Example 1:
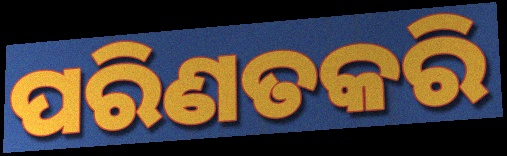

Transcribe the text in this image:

ପରିଣତକରି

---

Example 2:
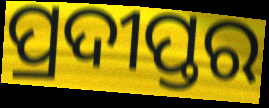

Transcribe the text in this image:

ପ୍ରଦୀପ୍ତର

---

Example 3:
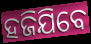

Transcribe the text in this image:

ହଜିଯିବେ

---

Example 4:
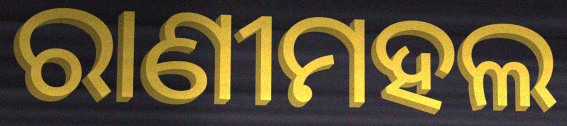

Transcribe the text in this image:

ରାଣୀମହଲ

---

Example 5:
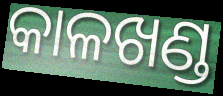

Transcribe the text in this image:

କାଳଖଣ୍ଡ